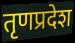
तृणप्रदेश